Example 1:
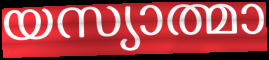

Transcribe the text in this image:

യസ്യാത്മാ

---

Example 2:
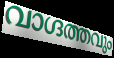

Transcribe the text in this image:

വാഗ്ദത്തവും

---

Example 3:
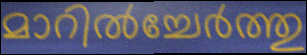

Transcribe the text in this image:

മാറിൽച്ചേർത്തു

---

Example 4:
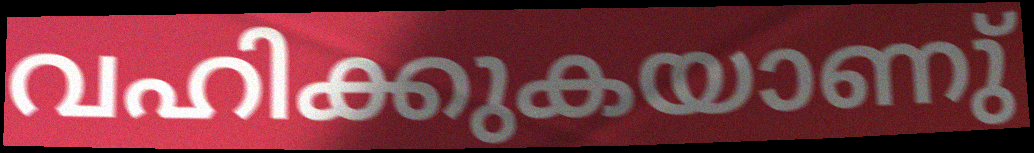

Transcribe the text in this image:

വഹിക്കുകയാണു്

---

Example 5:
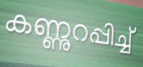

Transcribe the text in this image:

കണ്ണുറപ്പിച്ച്